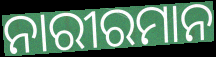
ନାରୀରମାନ